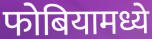
फोबियामध्ये